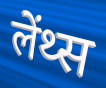
लेंथ्स